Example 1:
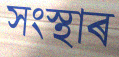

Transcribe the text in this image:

সংস্থাৰ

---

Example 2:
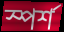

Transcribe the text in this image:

স্পৰ্শ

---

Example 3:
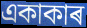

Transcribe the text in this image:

একাকাৰ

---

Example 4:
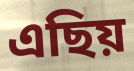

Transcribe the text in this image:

এছিয়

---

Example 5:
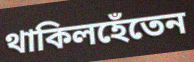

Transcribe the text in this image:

থাকিলহেঁতেন